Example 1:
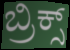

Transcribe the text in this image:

ಬ್ರಿಕ್ಸ್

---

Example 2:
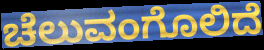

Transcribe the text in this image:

ಚೆಲುವಂಗೊಲಿದೆ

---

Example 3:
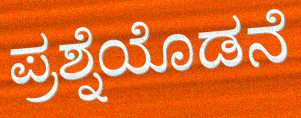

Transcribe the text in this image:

ಪ್ರಶ್ನೆಯೊಡನೆ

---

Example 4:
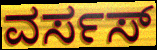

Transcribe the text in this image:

ವರ್ಸಸ್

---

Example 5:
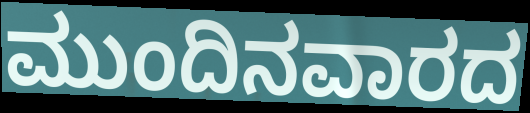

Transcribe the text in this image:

ಮುಂದಿನವಾರದ